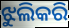
ଝୁଲିକରି